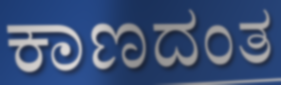
ಕಾಣದಂತ